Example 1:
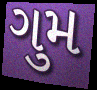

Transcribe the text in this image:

ગુમ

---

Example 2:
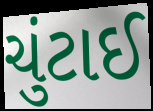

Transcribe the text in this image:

ચુંટાઈ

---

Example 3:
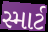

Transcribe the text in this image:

સ્માર્ટ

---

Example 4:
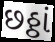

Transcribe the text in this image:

છઠ્ઠાં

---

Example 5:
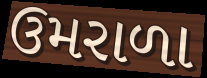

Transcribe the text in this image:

ઉમરાળા